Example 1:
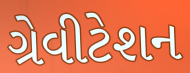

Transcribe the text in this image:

ગ્રેવીટેશન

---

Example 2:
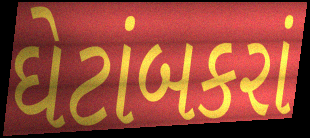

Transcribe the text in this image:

ઘેટાંબકરાં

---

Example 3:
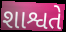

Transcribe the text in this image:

શાશ્વતે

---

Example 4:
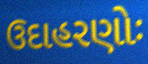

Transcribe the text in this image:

ઉદાહરણોઃ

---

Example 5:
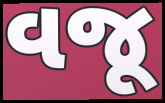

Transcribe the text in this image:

વજૂ